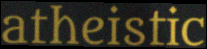
atheistic